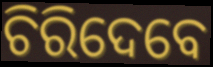
ଚିରିଦେବେ